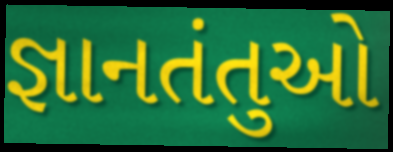
જ્ઞાનતંતુઓ